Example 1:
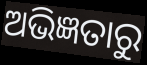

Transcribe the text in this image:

ଅଭିଜ୍ଞତାରୁ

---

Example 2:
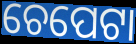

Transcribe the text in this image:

ଚେପେଟା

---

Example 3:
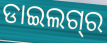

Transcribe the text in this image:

ଡାଇଲଗ୍‌ର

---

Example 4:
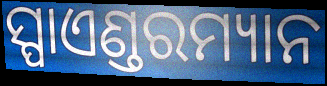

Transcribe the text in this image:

ସ୍ପାଏଣ୍ଡରମ୍ୟାନ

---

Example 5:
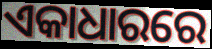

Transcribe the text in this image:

ଏକାଧାରରେ